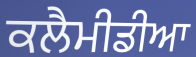
ਕਲੈਮੀਡੀਆ